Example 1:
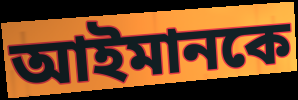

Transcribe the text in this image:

আইমানকে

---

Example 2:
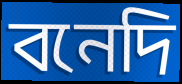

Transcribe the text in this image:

বনেদি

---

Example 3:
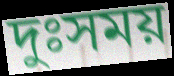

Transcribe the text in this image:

দুঃসময়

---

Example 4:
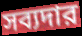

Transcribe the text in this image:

সব্যদার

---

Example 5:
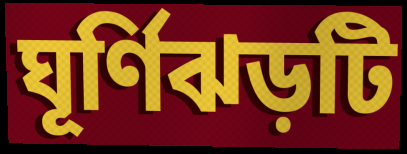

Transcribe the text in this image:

ঘূর্ণিঝড়টি